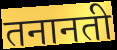
तनानती